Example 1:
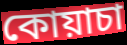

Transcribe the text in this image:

কোয়াচা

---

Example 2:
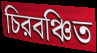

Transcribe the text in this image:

চিরবঞ্চিত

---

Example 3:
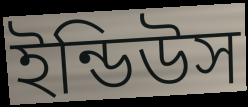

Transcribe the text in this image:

ইন্ডিউস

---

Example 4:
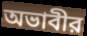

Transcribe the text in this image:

অভাবীর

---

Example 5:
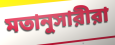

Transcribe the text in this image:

মতানুসারীরা